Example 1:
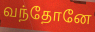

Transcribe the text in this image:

வந்தோனே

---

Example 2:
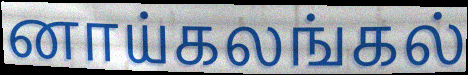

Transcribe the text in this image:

னாய்கலங்கல்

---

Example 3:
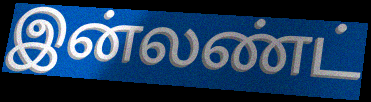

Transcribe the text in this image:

இன்லண்ட்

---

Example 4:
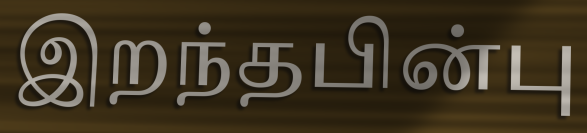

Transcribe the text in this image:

இறந்தபின்பு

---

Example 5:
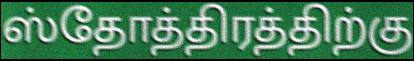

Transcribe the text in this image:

ஸ்தோத்திரத்திற்கு